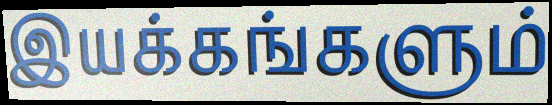
இயக்கங்களும்